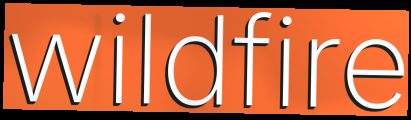
wildfire